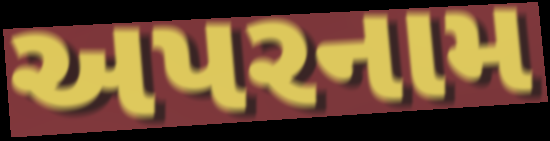
અપરનામ